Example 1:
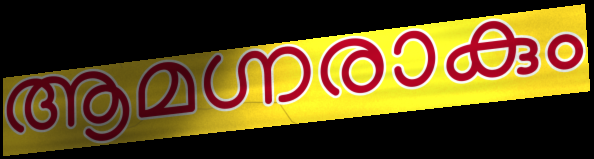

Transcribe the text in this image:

ആമഗ്നരാകും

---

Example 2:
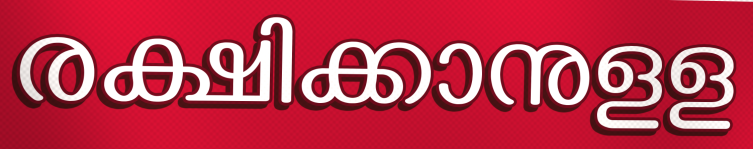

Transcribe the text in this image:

രക്ഷിക്കാനുളള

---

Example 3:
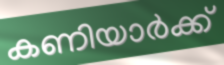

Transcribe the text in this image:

കണിയാർക്ക്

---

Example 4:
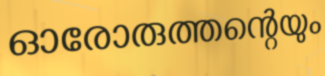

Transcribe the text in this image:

ഓരോരുത്തന്റെയും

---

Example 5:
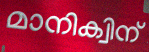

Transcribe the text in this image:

മാനിക്വിന്